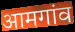
आमगांव